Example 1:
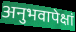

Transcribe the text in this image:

अनुभवापेक्षां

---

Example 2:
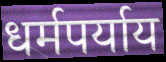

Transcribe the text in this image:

धर्मपर्याय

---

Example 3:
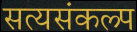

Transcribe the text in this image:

सत्यसंकल्प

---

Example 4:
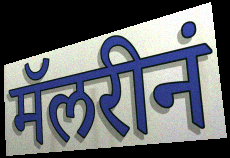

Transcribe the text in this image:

मॅलरीनं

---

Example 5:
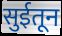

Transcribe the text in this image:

सुईतून